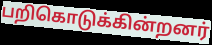
பறிகொடுக்கின்றனர்